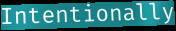
Intentionally